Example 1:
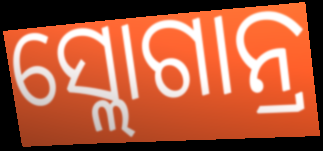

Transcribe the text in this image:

ସ୍ଲୋଗାନ୍ର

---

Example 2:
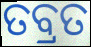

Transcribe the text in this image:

ତବ୍ରତ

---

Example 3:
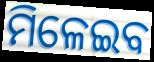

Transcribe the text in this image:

ମିଳେଇବ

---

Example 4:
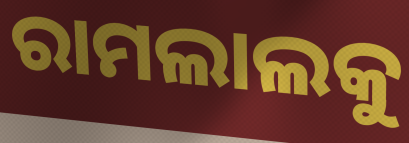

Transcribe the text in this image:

ରାମଲାଲକୁ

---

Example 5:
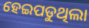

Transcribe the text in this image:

ହେଇପଡୁଥିଲା